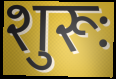
शुरूः